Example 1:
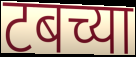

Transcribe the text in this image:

टबच्या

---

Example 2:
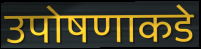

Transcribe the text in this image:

उपोषणाकडे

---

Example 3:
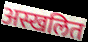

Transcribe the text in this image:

अस्खलित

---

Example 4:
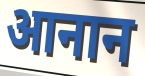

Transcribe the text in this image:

आनान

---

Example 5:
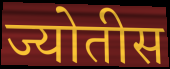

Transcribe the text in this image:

ज्योतीस